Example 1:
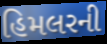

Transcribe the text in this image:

હિમલરની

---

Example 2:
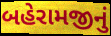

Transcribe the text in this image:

બહેરામજીનું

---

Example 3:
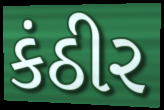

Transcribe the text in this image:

કંઠીર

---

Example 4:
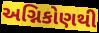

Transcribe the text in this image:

અગ્નિકોણથી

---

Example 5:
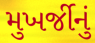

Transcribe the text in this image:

મુખર્જીનું